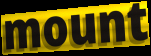
mount